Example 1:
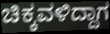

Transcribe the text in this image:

ಚಿಕ್ಕವಳಿದ್ದಾಗ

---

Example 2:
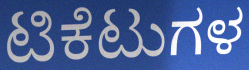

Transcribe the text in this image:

ಟಿಕೆಟುಗಳ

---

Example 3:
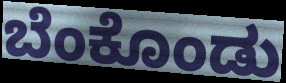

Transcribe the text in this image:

ಬೆಂಕೊಂಡು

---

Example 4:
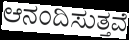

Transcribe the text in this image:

ಆನಂದಿಸುತ್ತವೆ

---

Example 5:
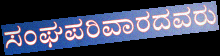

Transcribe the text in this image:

ಸಂಘಪರಿವಾರದವರು